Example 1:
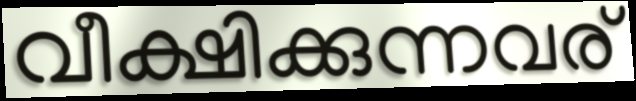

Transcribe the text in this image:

വീക്ഷിക്കുന്നവര്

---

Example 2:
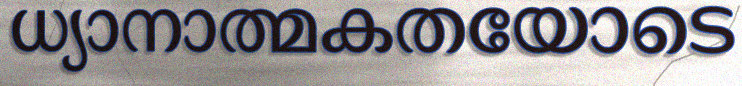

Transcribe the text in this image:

ധ്യാനാത്മകതയോടെ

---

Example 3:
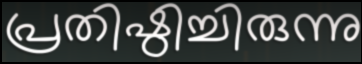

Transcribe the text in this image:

പ്രതിഷ്ഠിച്ചിരുന്നു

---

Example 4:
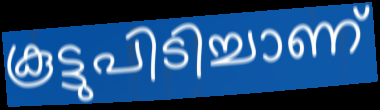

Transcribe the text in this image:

കൂട്ടുപിടിച്ചാണ്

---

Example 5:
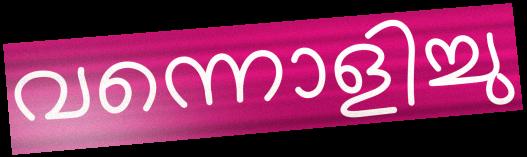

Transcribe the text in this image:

വന്നൊളിച്ചു